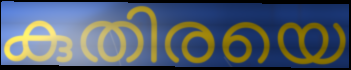
കുതിരയെ